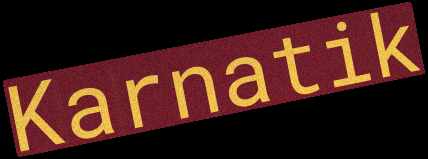
Karnatik